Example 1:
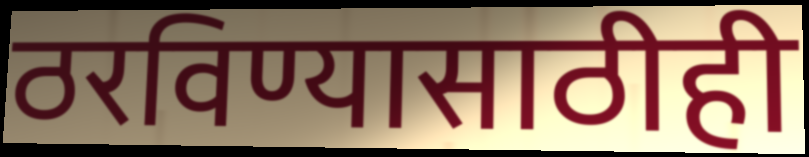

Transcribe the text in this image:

ठरविण्यासाठीही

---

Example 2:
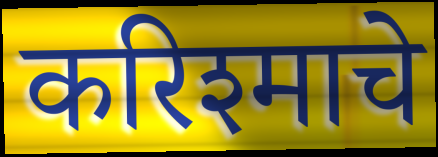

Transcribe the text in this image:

करिश्माचे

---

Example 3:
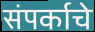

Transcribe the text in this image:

संपर्काचे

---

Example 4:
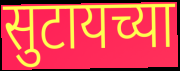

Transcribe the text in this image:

सुटायच्या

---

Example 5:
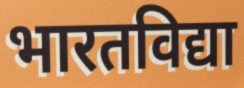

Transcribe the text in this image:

भारतविद्या